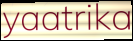
yaatrika